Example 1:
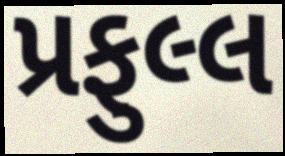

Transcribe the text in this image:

પ્રફુલ્લ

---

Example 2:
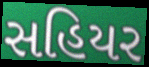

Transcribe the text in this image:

સહિયર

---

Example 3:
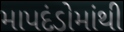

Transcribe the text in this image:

માપદંડોમાંથી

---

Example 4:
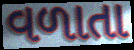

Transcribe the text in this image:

વળાતા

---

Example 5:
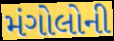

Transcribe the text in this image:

મંગોલોની